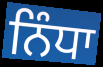
ਨਿੰਧਾ